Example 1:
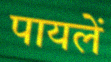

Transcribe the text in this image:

पायलें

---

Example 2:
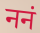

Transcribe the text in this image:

ननं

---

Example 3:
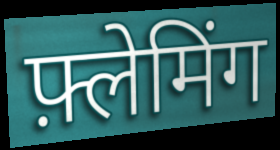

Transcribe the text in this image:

फ़्लेमिंग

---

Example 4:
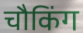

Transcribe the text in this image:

चौकिंग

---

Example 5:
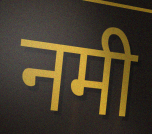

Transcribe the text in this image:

नमी